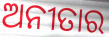
ଅନୀତାର